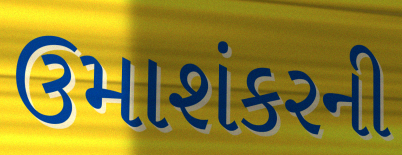
ઉમાશંકરની